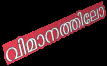
വിമാനത്തിലോ